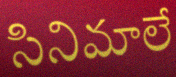
సినిమాలే